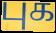
புக